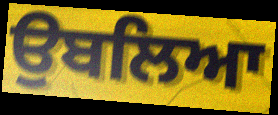
ਉਬਲਿਆ